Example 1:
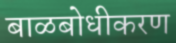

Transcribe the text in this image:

बाळबोधीकरण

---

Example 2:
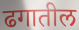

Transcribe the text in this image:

ढगातील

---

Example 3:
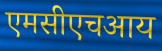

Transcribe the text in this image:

एमसीएचआय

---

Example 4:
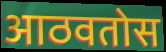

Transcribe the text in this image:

आठवतोस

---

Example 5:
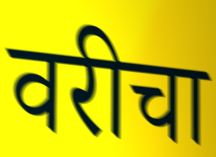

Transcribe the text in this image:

वरीचा